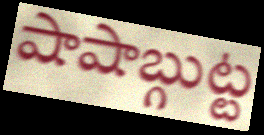
షాషాబ్గుట్ట